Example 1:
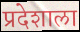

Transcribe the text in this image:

प्रदेशाला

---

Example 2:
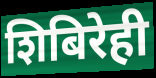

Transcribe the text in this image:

शिबिरेही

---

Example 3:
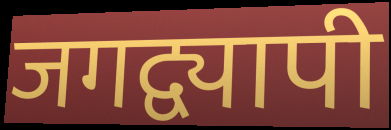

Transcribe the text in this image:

जगद्व्यापी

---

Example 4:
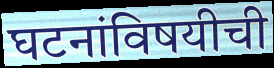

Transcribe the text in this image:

घटनांविषयीची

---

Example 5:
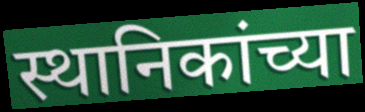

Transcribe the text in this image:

स्थानिकांच्या